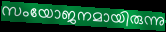
സംയോജനമായിരുന്നു